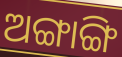
ଅଙ୍ଗାଙ୍ଗି